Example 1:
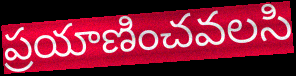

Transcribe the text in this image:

ప్రయాణించవలసి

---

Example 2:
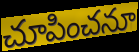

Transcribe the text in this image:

చూపించనూ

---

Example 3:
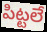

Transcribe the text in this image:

పిట్టలే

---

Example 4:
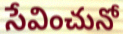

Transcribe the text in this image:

సేవించునో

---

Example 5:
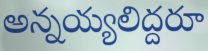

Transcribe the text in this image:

అన్నయ్యలిద్దరూ